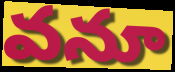
వనూ